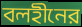
বলহীনের